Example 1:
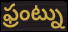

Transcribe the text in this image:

ఫ్రంట్ను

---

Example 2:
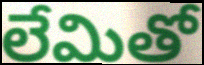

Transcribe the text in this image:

లేమితో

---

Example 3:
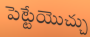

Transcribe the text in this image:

పెట్టేయొచ్చు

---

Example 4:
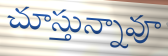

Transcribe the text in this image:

చూస్తున్నావూ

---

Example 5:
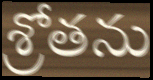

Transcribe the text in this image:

శ్రోతను